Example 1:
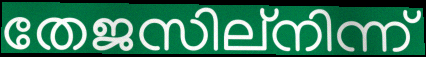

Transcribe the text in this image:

തേജസില്നിന്ന്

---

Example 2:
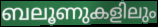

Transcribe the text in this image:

ബലൂണുകളിലും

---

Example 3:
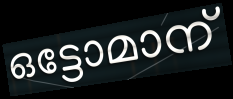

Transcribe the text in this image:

ഒട്ടോമാന്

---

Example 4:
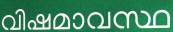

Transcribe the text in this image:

വിഷമാവസ്ഥ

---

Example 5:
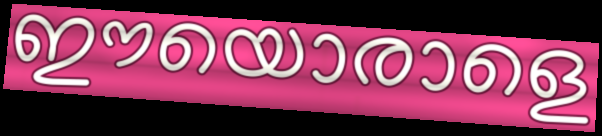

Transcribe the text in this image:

ഈയൊരാളെ